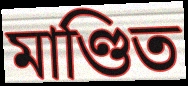
মাণ্ডিত